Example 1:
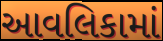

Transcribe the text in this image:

આવલિકામાં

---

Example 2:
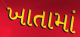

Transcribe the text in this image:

ખાતામાં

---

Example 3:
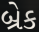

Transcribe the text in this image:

બ્રેક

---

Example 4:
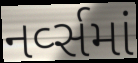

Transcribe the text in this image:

નર્વ્સમાં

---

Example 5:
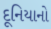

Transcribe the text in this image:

દૂનિયાનો